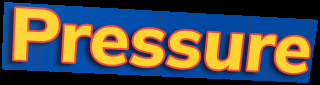
Pressure